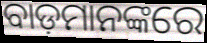
ବାଡ଼ମାନଙ୍କରେ